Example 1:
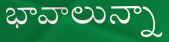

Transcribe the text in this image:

భావాలున్నా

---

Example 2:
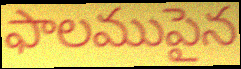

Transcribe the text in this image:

ఫాలముపైన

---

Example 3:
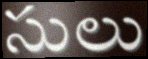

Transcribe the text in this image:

సులు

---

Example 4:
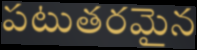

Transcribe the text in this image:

పటుతరమైన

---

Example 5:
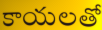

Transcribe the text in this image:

కాయలతో